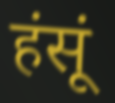
हंसूं